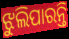
ଝୁଲିପାରନ୍ତି